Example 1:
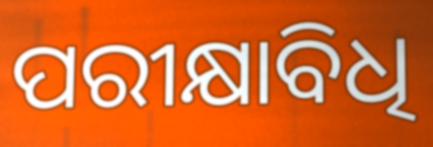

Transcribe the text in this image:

ପରୀକ୍ଷାବିଧି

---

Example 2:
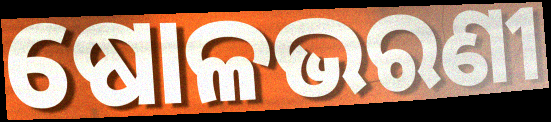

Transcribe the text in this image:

ଷୋଳଭରଣୀ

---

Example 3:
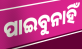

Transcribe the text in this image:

ପାଇବୁନାହିଁ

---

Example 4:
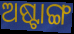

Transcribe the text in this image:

ଅଷ୍ଟାଙ୍ଗ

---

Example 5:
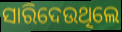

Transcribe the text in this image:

ସାରିଦେଉଥିଲେ